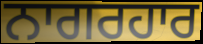
ਨਾਗਰਹਾਰ